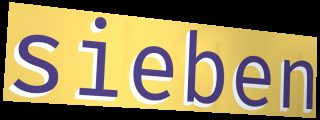
sieben